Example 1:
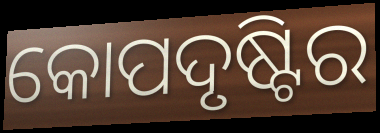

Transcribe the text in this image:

କୋପଦୃଷ୍ଟିର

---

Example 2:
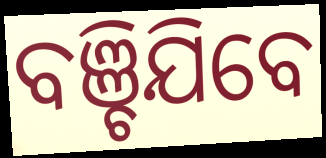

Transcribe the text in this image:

ବଞ୍ଚିଯିବେ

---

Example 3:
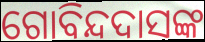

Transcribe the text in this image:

ଗୋବିନ୍ଦଦାସଙ୍କ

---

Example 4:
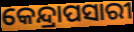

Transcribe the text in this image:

କେନ୍ଦ୍ରାପସାରୀ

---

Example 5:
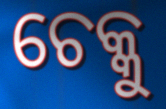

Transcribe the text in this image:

ଚେକ୍କୁ